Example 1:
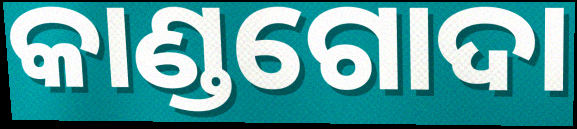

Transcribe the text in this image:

କାଣ୍ଡଗୋଦା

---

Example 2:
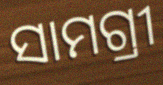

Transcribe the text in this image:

ସାମଗ୍ରୀ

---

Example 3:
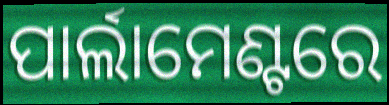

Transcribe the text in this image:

ପାର୍ଲାମେଣ୍ଟରେ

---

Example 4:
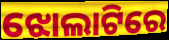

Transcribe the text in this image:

ଝୋଲାଟିରେ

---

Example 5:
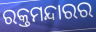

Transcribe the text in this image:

ରକ୍ତମନ୍ଦାରର